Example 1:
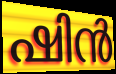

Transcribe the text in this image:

ഷിൻ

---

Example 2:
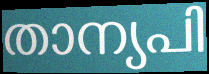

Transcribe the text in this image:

താന്യപി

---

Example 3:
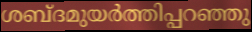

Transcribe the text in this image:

ശബ്ദമുയർത്തിപ്പറഞ്ഞു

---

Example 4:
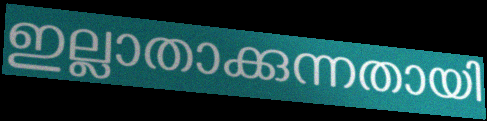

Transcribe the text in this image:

ഇല്ലാതാക്കുന്നതായി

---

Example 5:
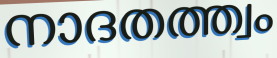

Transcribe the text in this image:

നാദതത്ത്വം